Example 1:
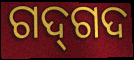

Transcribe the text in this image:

ଗଦ୍‍ଗଦ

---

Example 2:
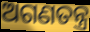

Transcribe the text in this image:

ଅଗଣତନ୍ତ୍ର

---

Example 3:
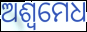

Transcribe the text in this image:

ଅଶ୍ବମେଧ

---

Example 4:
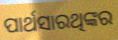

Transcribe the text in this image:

ପାର୍ଥସାରଥିଙ୍କର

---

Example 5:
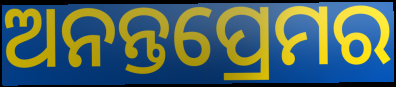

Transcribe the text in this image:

ଅନନ୍ତପ୍ରେମର